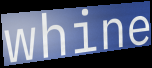
whine